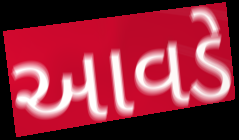
આવડે